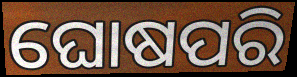
ଘୋଷପରି